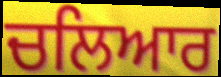
ਚਲਿਆਰ